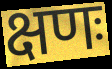
क्षणः